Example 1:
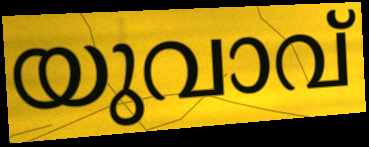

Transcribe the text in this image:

യുവാവ്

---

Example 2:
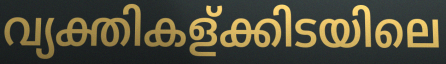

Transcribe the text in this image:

വ്യക്തികള്ക്കിടയിലെ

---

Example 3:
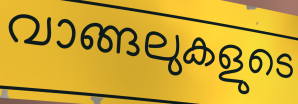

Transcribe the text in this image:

വാങ്ങലുകളുടെ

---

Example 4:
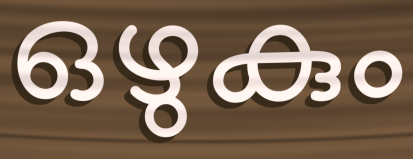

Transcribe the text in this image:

ഒഴുകും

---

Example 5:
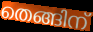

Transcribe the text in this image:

തെങ്ങിന്